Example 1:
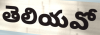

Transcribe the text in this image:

తెలియవో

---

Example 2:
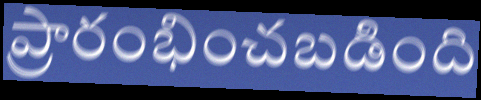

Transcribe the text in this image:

ప్రారంభించబడింది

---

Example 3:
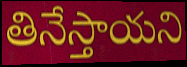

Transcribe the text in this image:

తినేస్తాయని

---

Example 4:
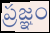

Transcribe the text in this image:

ప్రజ్ఞం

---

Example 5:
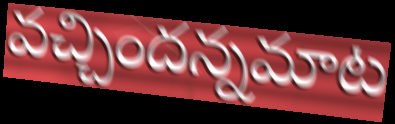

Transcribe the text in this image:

వచ్చిందన్నమాట